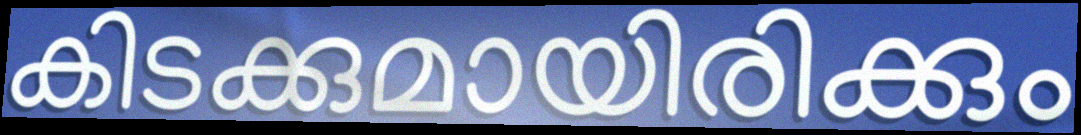
കിടക്കുമായിരിക്കും